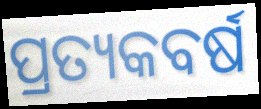
ପ୍ରତ୍ୟକବର୍ଷ